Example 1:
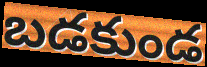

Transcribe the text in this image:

బడకుండ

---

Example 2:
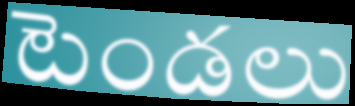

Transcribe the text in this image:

టెండలు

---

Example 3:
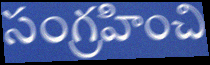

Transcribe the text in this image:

సంగ్రహించి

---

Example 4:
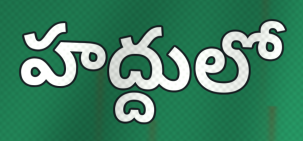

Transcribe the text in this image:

హద్దులో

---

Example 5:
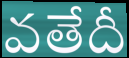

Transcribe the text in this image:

వతేదీ